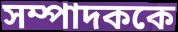
সম্পাদককে